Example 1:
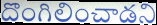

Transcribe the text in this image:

దొంగిలించాడని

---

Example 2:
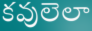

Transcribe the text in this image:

కవులెలా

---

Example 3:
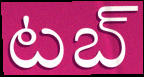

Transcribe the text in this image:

టబ్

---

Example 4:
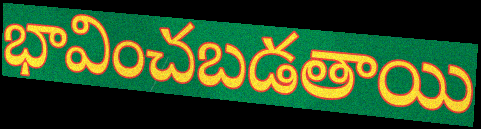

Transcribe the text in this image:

భావించబడతాయి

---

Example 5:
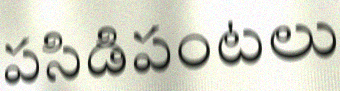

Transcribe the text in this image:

పసిడిపంటలు